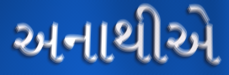
અનાથીએ